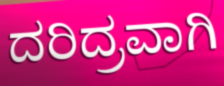
ದರಿದ್ರವಾಗಿ